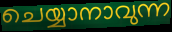
ചെയ്യാനാവുന്ന